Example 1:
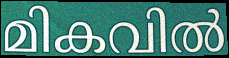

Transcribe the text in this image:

മികവിൽ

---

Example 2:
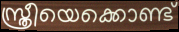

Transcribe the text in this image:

സ്ത്രീയെക്കൊണ്ട്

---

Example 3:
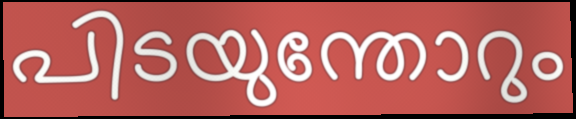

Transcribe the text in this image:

പിടയുന്തോറും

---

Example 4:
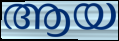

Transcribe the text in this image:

ആയ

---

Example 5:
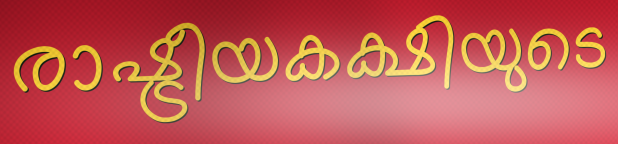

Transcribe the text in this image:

രാഷ്ട്രീയകക്ഷിയുടെ